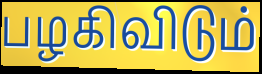
பழகிவிடும்